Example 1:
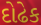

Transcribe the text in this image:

દોઢેક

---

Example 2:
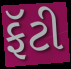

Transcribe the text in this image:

ફૅટી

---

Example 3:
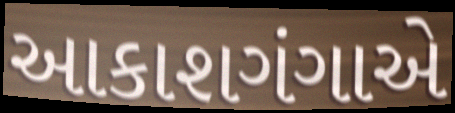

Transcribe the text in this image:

આકાશગંગાએ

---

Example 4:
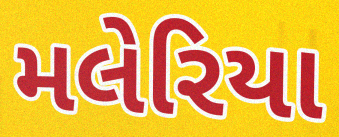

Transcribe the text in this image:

મલેરિયા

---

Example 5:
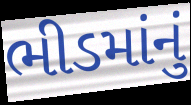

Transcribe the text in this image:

ભીડમાંનું